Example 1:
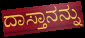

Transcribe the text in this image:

ದಾಸ್ತಾನನ್ನು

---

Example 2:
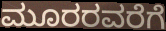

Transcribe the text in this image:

ಮೂರರವರೆಗೆ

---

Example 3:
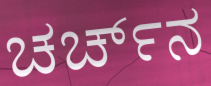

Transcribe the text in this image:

ಚರ್ಚ್‌ನ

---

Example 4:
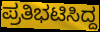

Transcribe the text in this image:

ಪ್ರತಿಭಟಿಸಿದ್ದ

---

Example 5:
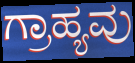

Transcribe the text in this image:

ಗ್ರಾಹ್ಯವು